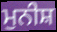
ਮੁਨੀਸ਼